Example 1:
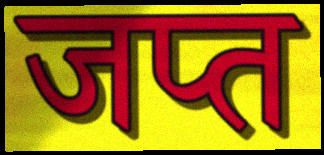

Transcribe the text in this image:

जप्त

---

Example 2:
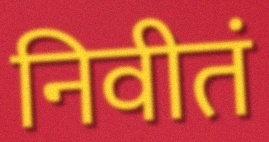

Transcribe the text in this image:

निवीतं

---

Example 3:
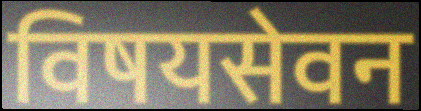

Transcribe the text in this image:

विषयसेवन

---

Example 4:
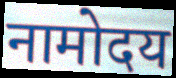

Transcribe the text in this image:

नामोदय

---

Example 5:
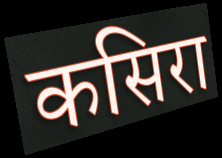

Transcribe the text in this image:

कसिरा